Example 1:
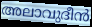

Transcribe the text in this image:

അലാവുദീൻ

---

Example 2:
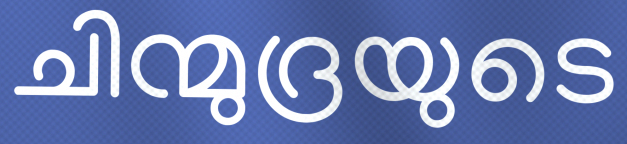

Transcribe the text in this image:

ചിന്മുദ്രയുടെ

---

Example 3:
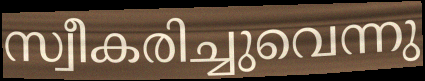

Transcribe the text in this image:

സ്വീകരിച്ചുവെന്നു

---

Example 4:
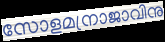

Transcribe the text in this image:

സോളമന്രാജാവിനു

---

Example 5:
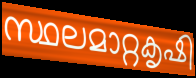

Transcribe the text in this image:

സ്ഥലമാറ്റകൃഷി